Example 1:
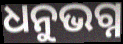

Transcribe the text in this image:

ଧନୁଭଗ୍ନ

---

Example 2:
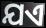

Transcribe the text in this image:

ଯଏ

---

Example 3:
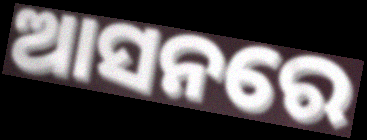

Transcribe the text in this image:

ଆସନରେ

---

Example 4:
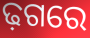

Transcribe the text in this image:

ଢ଼ଗରେ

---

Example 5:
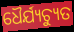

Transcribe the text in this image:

ଧୈର୍ଯ୍ୟଚ୍ୟୁତ